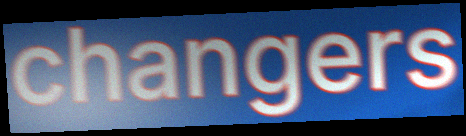
changers